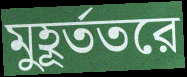
মুহূর্ততরে